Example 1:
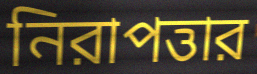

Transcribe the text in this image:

নিরাপত্তার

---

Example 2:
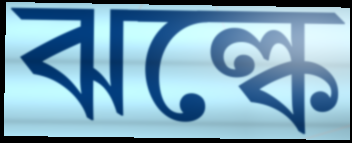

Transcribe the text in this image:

ঝল্কে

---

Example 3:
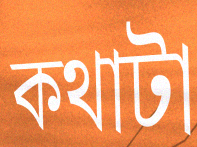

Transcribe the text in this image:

কথাটা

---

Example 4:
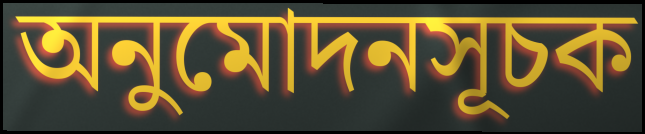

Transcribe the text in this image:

অনুমোদনসূচক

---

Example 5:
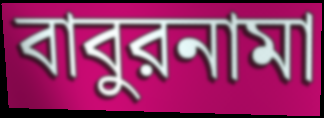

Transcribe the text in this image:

বাবুরনামা